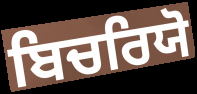
ਬਿਚਰਿਯੋ